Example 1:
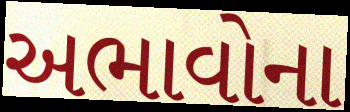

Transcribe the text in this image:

અભાવોના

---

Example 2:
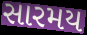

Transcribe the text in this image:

સારમય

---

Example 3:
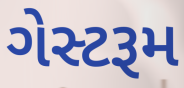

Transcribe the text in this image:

ગેસ્ટરૂમ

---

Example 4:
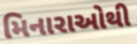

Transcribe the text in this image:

મિનારાઓથી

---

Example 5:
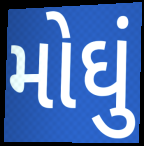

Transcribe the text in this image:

મોઘું